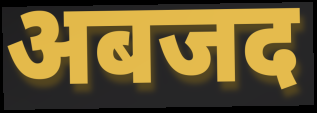
अबजद